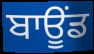
ਬਾਊਂਡ